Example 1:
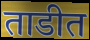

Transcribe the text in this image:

ताडीत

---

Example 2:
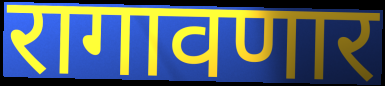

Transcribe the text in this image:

रागावणार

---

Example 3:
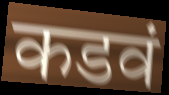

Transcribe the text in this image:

कडवं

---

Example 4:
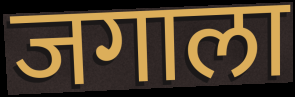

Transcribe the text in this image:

जगाला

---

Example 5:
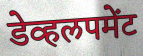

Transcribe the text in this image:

डेव्हलपमेंट